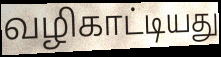
வழிகாட்டியது